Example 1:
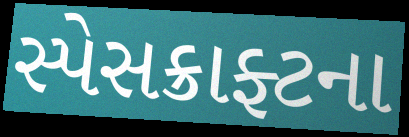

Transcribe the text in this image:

સ્પેસક્રાફ્ટના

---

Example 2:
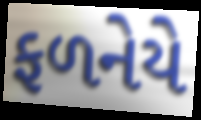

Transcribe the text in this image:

ફળનેયે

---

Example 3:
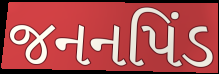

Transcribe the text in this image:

જનનપિંડ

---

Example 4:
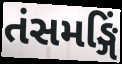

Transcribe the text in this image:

તંસમઙ્ગિં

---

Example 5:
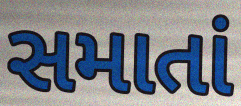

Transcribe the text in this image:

સમાતાં